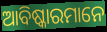
ଆବିଷ୍କାରମାନେ